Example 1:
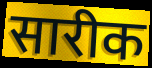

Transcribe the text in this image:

सारीक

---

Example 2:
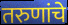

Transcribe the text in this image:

तरुणांचे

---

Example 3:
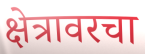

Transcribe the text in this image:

क्षेत्रावरचा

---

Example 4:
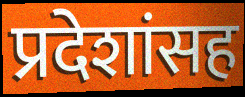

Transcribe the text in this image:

प्रदेशांसह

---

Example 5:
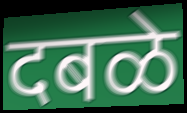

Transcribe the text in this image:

दबळे